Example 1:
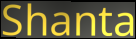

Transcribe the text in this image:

Shanta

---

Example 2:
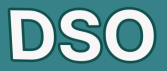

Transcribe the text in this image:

DSO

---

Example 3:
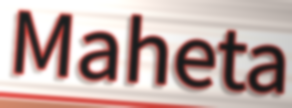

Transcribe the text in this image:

Maheta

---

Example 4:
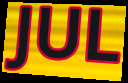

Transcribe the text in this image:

JUL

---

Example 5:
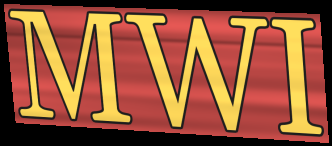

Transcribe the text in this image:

MWI